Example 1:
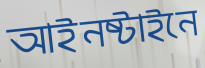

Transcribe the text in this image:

আইনষ্টাইনে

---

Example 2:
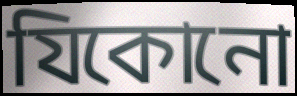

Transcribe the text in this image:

যিকোনো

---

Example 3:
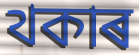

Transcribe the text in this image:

থকাৰ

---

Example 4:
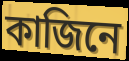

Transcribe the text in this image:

কাজিনে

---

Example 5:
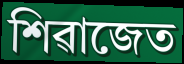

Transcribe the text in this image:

শিৱাজেত